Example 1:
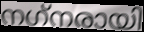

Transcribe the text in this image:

നഗ്‌നരായി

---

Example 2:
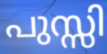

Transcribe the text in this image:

പുസ്സി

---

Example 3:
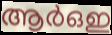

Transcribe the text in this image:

ആർഒഇ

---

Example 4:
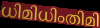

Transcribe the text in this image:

ധിമിധിംതിമി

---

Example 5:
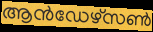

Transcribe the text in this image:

ആൻഡേഴ്സൺ